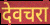
देवचरा